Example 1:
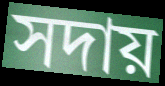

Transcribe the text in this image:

সদায়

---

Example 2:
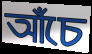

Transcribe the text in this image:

আঁচে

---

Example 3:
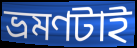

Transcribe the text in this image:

ভ্রমণটাই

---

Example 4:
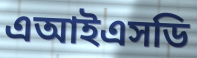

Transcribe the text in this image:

এআইএসডি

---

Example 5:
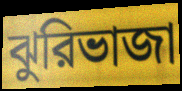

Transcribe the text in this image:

ঝুরিভাজা